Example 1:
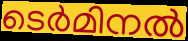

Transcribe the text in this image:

ടെർമിനൽ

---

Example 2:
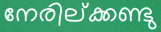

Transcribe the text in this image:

നേരില്ക്കണ്ടു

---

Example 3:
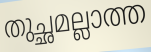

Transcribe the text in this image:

തുച്ഛമല്ലാത്ത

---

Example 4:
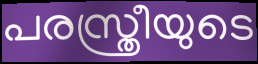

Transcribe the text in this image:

പരസ്ത്രീയുടെ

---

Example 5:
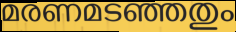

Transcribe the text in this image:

മരണമടഞ്ഞതും